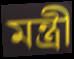
মন্ত্রী